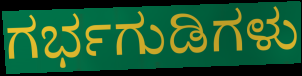
ಗರ್ಭಗುಡಿಗಳು